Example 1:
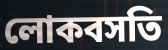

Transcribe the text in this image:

লোকবসতি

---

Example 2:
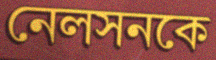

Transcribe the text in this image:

নেলসনকে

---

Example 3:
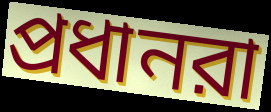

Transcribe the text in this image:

প্রধানরা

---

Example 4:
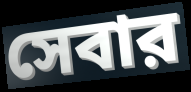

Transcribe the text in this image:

সেবার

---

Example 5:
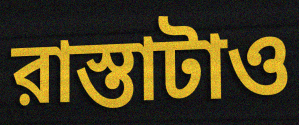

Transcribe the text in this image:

রাস্তাটাও